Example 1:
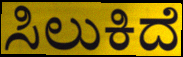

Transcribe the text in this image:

ಸಿಲುಕಿದೆ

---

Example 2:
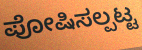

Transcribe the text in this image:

ಪೋಷಿಸಲ್ಪಟ್ಟ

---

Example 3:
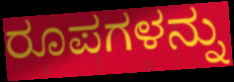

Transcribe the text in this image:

ರೂಪಗಳನ್ನು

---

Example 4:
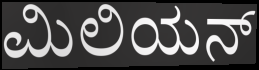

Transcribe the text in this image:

ಮಿಲಿಯನ್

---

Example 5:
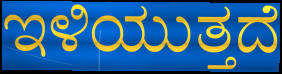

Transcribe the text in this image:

ಇಳಿಯುತ್ತದೆ